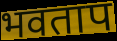
भवताप